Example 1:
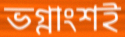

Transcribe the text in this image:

ভগ্নাংশই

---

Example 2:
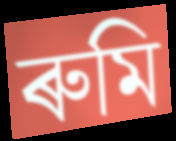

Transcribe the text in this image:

ৰুমি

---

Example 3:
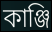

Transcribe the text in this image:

কাঞ্জি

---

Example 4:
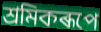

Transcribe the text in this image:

শ্ৰমিকৰূপে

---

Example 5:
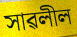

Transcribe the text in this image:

সাৱলীল